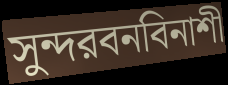
সুন্দরবনবিনাশী